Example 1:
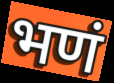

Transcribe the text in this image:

भणं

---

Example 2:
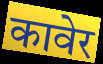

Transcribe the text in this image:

कावेर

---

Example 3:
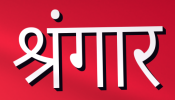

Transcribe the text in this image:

श्रंगार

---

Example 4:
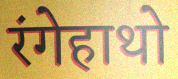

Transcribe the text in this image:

रंगेहाथो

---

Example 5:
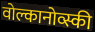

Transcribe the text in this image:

वोल्कानोव्स्की